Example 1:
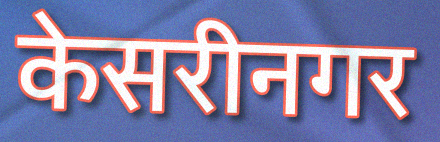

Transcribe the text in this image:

केसरीनगर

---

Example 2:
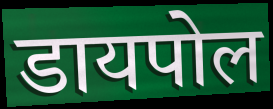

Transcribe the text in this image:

डायपोल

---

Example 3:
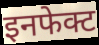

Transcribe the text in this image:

इनफेक्ट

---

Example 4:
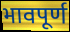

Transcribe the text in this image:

भावपूर्ण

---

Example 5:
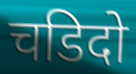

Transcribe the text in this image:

चडिदो